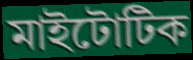
মাইটোটিক